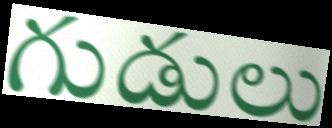
గుడులు